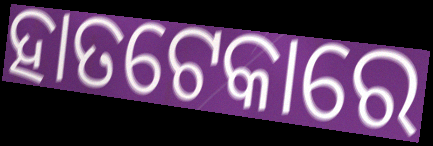
ହାତଟେକାରେ